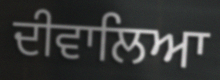
ਦੀਵਾਲਿਆ